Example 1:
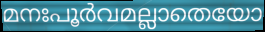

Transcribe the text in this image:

മനഃപൂർവമല്ലാതെയോ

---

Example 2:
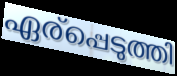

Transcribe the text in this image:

ഏര്പ്പെടുത്തി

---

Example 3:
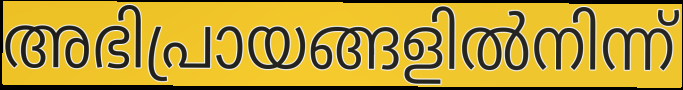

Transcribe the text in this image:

അഭിപ്രായങ്ങളിൽനിന്ന്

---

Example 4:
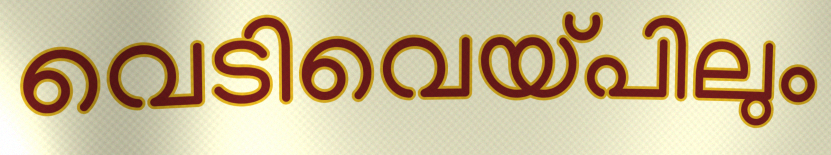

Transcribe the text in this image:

വെടിവെയ്പിലും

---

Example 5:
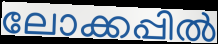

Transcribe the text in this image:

ലോക്കപ്പിൽ